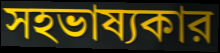
সহভাষ্যকার